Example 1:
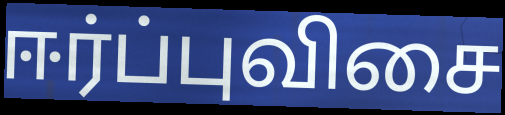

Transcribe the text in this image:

ஈர்ப்புவிசை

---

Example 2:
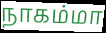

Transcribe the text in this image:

நாகம்மா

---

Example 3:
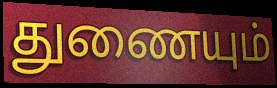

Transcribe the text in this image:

துணையும்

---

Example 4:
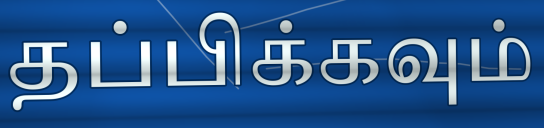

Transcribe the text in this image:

தப்பிக்கவும்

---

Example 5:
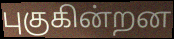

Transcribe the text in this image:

புகுகின்றன